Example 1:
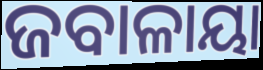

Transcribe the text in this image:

ଜବାଳାୟା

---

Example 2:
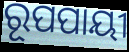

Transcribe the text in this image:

ରୂପପାୟୀ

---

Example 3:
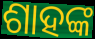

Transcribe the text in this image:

ଶାହଙ୍କ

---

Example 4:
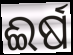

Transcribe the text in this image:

ଈର୍ଷ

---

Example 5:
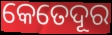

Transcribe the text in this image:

କେତେଦୂର